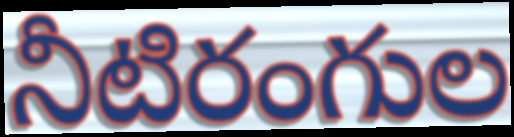
నీటిరంగుల